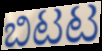
ಬಿಟಟ